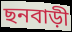
ছনবাড়ী